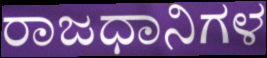
ರಾಜಧಾನಿಗಳ